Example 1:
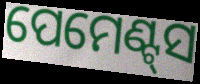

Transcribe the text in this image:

ପେମେଣ୍ଟ୍‌ସ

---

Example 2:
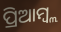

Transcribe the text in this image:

ପ୍ରିଆମ୍ବ୍ଲ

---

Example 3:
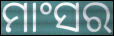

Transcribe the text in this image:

ମାଂସର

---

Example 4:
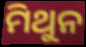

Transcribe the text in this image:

ମିଥୁନ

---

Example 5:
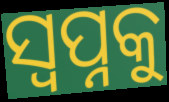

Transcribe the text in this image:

ସ୍ବପ୍ନକୁ